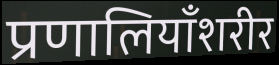
प्रणालियाँशरीर